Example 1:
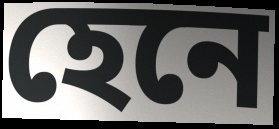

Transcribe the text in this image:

হেনে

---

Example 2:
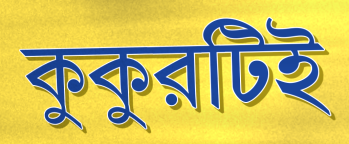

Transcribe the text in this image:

কুকুরটিই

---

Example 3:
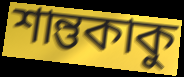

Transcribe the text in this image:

শান্তুকাকু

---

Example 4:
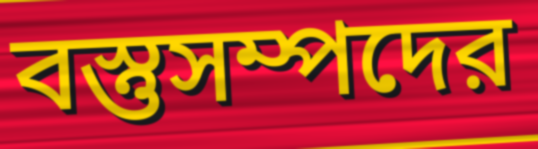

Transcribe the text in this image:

বস্তুসম্পদের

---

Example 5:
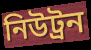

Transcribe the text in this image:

নিউট্রন